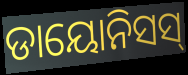
ଡାୟୋନିସସ୍